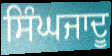
ਸਿੰਘਜਾਦੂ